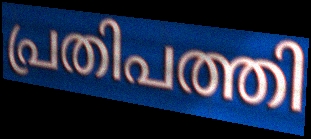
പ്രതിപത്തി